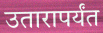
उतारापर्यंत